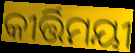
କୀର୍ତ୍ତିମୟୀ